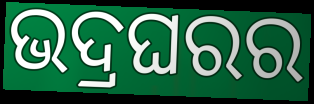
ଭଦ୍ରଘରର